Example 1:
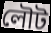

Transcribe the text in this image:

লৌট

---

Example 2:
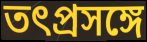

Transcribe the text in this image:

তৎপ্রসঙ্গে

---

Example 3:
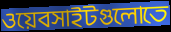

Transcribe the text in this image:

ওয়েবসাইটগুলোতে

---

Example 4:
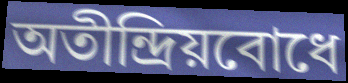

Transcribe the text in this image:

অতীন্দ্রিয়বোধে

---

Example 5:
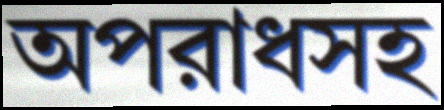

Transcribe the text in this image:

অপরাধসহ